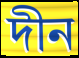
দীন